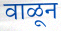
वाळून